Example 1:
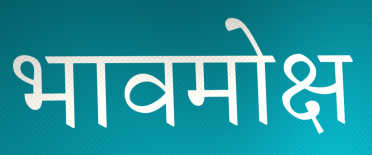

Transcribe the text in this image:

भावमोक्ष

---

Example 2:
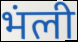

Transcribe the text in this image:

भंली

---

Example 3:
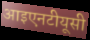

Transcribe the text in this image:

आइएनटीयूसी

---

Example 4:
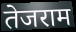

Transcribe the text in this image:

तेजराम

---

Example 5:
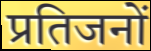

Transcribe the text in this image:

प्रतिजनों